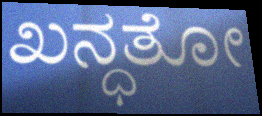
ಖನ್ಧತೋ